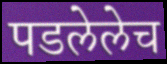
पडलेलेच